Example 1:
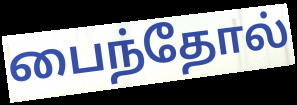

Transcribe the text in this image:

பைந்தோல்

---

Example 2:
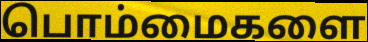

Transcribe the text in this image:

பொம்மைகளை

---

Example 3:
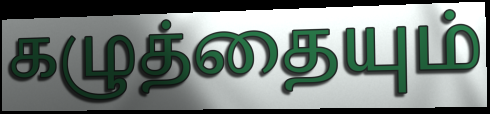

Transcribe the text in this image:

கழுத்தையும்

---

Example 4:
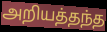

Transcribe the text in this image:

அறியத்தந்த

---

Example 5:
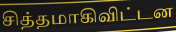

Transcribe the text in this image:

சித்தமாகிவிட்டன